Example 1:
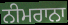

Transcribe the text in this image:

ਨੀਮਰਾਨਾ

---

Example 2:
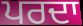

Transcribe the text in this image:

ਪਰਦਾ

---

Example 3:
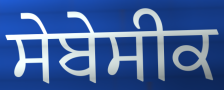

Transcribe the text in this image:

ਸੇਬੇਸੀਕ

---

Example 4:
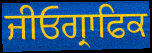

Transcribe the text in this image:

ਜੀਓਗ੍ਰਾਫਿਕ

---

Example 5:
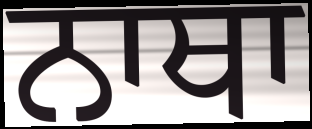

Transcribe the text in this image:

ਨਾਥਾ